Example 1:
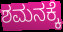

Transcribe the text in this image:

ಶಮನಕ್ಕೆ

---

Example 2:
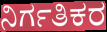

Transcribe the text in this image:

ನಿರ್ಗತಿಕರ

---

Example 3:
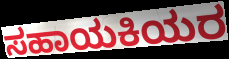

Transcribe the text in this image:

ಸಹಾಯಕಿಯರ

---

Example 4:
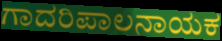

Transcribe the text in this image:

ಗಾದರಿಪಾಲನಾಯಕ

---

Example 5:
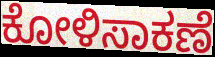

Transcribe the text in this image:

ಕೋಳಿಸಾಕಣೆ